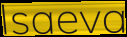
Isaeva